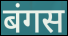
बंगस